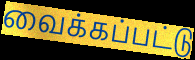
வைக்கப்பட்டு